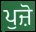
ਪੁਜ਼ੋ